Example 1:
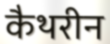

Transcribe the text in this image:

कैथरीन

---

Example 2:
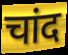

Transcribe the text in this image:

चांद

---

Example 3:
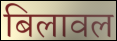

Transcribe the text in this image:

बिलावल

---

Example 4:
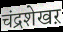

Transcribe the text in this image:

चंद्रशेखऱ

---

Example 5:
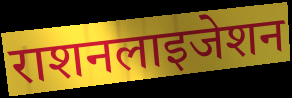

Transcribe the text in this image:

राशनलाइजेशन